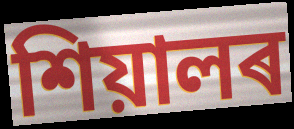
শিয়ালৰ